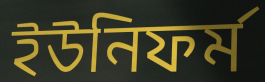
ইউনিফর্ম